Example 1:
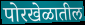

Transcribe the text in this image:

पोरखेळातील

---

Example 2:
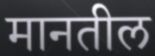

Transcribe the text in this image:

मानतील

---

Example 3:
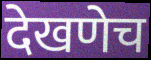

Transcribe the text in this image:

देखणेच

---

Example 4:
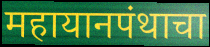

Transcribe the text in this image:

महायानपंथाचा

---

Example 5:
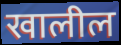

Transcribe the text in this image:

खालील